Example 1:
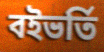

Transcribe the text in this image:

বইভর্তি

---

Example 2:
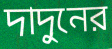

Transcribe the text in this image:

দাদুনের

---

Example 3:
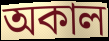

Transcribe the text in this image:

অকাল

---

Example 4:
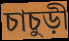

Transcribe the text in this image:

চাচুড়ী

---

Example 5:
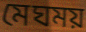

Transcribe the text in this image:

মেঘময়